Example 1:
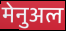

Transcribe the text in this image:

मेनुअल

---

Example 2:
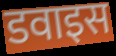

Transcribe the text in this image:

डवाइस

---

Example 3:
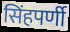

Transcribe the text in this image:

सिंहपर्णी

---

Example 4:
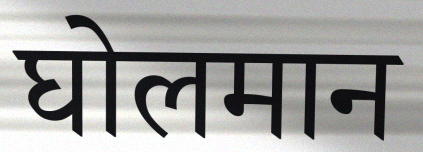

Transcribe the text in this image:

घोलमान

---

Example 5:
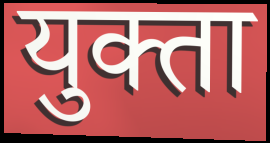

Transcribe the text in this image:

युक्ता